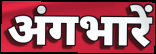
अंगभारें